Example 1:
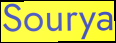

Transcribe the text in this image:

Sourya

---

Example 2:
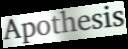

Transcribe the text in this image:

Apothesis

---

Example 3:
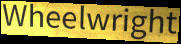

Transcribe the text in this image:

Wheelwright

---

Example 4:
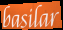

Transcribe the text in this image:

basilar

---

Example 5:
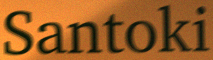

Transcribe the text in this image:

Santoki